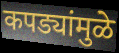
कपड्यांमुळे